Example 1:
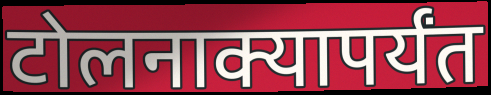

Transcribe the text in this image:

टोलनाक्यापर्यंत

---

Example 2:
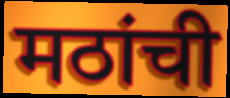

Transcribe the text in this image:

मठांची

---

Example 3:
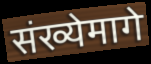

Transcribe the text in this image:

संख्येमागे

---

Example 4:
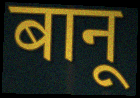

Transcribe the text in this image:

बानू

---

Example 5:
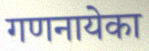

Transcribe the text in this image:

गणनायेका